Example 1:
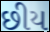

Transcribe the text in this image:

છીય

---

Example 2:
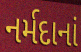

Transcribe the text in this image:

નર્મદાનાં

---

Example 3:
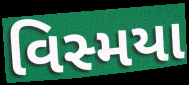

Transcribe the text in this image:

વિસ્મયા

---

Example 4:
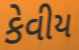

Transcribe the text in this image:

કેવીય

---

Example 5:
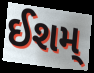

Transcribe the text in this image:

ઈશમ્